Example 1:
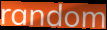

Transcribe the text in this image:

random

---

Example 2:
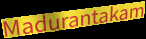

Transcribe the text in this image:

Madurantakam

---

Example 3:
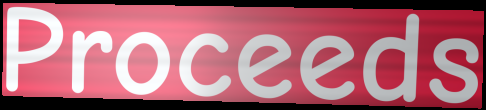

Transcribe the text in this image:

Proceeds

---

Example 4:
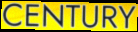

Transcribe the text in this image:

CENTURY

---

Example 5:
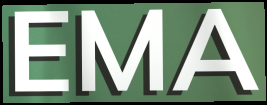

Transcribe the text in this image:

EMA